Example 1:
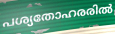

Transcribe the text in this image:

പശ്യതോഹരരിൽ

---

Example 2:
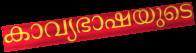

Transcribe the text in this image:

കാവ്യഭാഷയുടെ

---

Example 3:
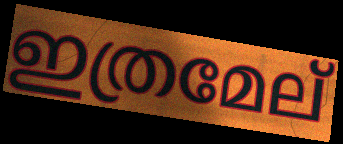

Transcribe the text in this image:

ഇത്രമേല്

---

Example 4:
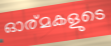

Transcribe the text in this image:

ഓര്മകളുടെ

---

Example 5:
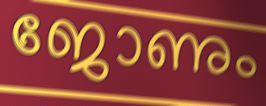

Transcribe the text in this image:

ജോണും